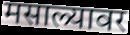
मसाल्यावर